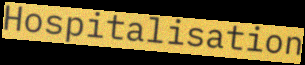
Hospitalisation